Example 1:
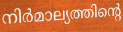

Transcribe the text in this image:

നിർമാല്യത്തിന്റെ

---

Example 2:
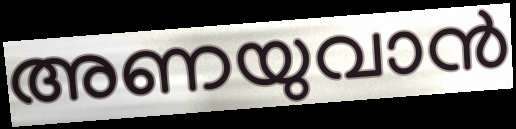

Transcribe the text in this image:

അണയുവാൻ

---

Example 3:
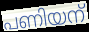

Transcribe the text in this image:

പണിയന്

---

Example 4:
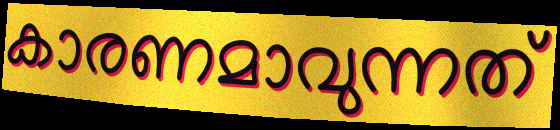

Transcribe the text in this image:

കാരണമാവുന്നത്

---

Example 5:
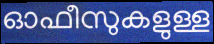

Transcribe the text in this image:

ഓഫീസുകളുള്ള